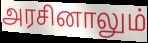
அரசினாலும்